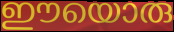
ഈയൊരു